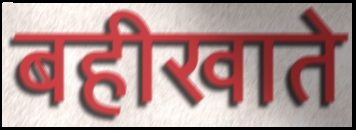
बहीखाते